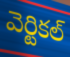
వెర్టికల్